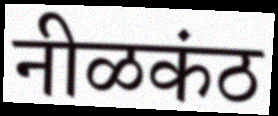
नीळकंठ